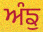
ਅੰਙੁ